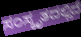
ಸಂಸ್ಕೃತದಲ್ಲಿದೆ